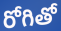
రోగితో